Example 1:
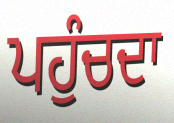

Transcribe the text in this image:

ਪਹੁੰਚਦਾ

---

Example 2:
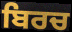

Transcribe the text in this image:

ਬਿਰਚ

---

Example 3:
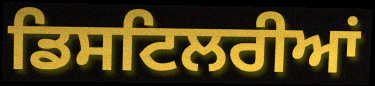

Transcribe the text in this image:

ਡਿਸਟਿਲਰੀਆਂ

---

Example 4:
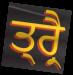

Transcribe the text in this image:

ਤ੍ਰ੍ਰੈ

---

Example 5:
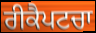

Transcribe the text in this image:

ਰੀਕੈਪਟਚਾ